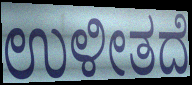
ಉಳೀತದೆ